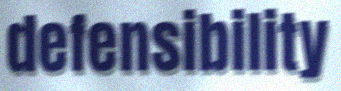
defensibility